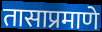
तासाप्रमाणे